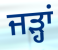
ਜੜ੍ਹਾਂ